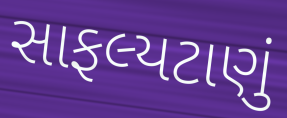
સાફલ્યટાણું